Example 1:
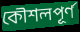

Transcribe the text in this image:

কৌশলপূৰ্ণ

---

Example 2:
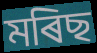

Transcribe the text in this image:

মৰিছ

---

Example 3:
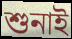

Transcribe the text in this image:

শুনাই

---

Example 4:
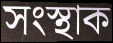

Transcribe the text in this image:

সংস্থাক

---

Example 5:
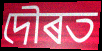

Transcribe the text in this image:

দৌৰত